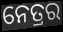
ନେତ୍ରର